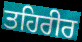
ਤਹਿਰੀਰ